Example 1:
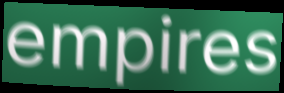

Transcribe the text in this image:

empires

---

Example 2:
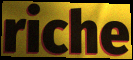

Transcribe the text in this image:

riche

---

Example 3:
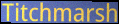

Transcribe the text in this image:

Titchmarsh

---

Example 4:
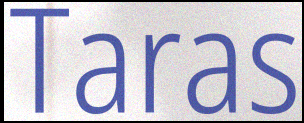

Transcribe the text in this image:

Taras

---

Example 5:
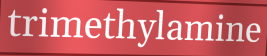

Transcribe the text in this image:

trimethylamine